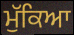
ਮੁੱਕਿਆ